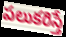
పలుకరిస్తే